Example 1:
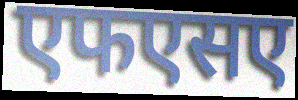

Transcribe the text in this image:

एफएसए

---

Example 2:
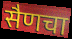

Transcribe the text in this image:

सैणचा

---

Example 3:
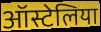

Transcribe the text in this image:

ऑस्टेलिया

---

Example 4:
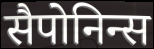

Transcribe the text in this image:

सैपोनिन्स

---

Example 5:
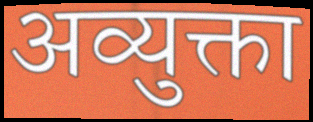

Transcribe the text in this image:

अव्युक्ता